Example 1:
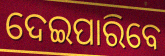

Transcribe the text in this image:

ଦେଇପାରିବେ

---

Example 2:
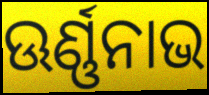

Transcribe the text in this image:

ଊର୍ଣ୍ଣନାଭ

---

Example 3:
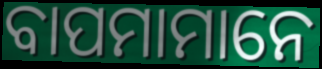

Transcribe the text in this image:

ବାପମାମାନେ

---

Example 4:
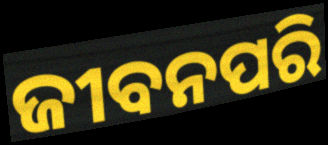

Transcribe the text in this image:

ଜୀବନପରି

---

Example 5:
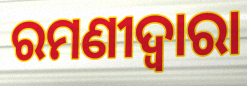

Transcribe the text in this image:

ରମଣୀଦ୍ୱାରା